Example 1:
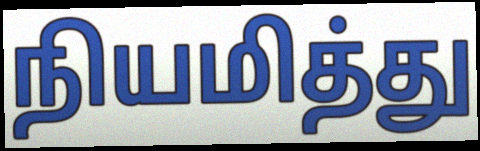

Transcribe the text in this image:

நியமித்து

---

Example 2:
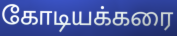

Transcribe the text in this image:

கோடியக்கரை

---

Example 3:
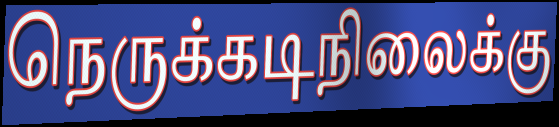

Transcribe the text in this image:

நெருக்கடிநிலைக்கு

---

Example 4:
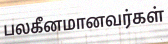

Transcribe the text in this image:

பலகீனமானவர்கள்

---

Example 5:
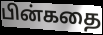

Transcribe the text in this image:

பின்கதை